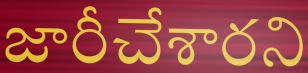
జారీచేశారని